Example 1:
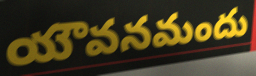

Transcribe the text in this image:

యౌవనమందు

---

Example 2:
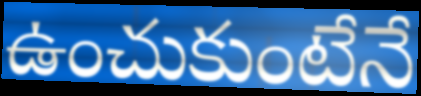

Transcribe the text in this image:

ఉంచుకుంటేనే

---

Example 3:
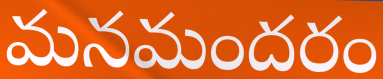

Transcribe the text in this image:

మనమందరం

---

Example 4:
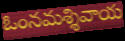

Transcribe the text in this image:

ఓంనమశ్శివాయ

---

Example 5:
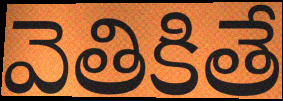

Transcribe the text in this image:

వెతికితే